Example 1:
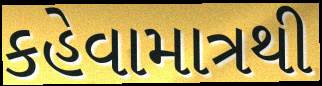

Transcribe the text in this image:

કહેવામાત્રથી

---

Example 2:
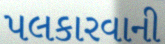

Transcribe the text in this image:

પલકારવાની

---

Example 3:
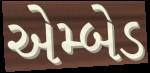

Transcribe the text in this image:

એમ્બેડ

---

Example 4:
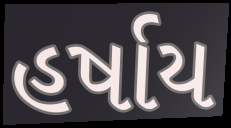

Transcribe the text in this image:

હર્ષાય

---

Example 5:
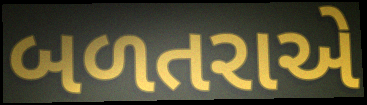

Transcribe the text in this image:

બળતરાએ